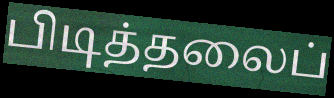
பிடித்தலைப்